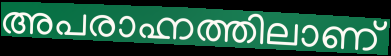
അപരാഹ്നത്തിലാണ്